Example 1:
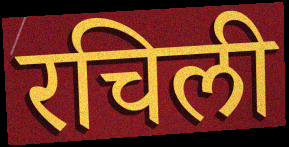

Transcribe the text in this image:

रचिली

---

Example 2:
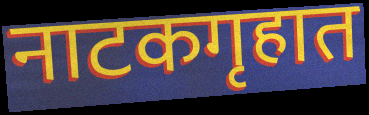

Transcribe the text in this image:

नाटकगृहात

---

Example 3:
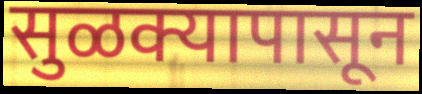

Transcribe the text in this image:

सुळक्यापासून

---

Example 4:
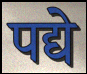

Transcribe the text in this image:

पद्ये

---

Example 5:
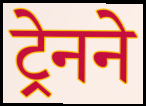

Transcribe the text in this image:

ट्रेनने